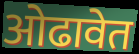
ओढावेत